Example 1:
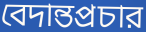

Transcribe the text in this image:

বেদান্তপ্রচার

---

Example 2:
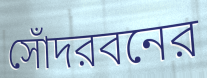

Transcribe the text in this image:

সোঁদরবনের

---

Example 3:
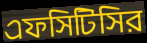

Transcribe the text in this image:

এফসিটিসির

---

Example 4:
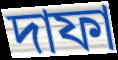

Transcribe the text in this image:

দাফা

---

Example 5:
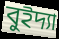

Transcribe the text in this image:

বুইদ্যা